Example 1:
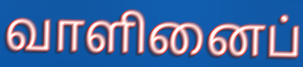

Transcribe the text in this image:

வாளினைப்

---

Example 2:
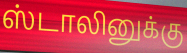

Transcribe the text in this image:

ஸ்டாலினுக்கு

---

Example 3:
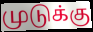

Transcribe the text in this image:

முடுக்கு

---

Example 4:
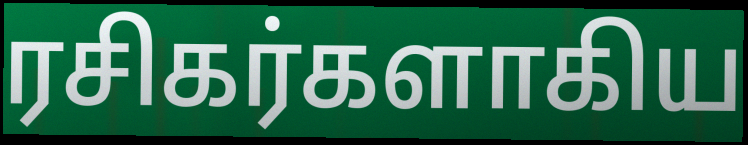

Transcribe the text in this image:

ரசிகர்களாகிய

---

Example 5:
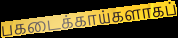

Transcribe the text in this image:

பகடைக்காய்களாகப்